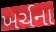
ખર્ચના